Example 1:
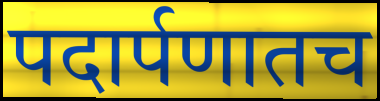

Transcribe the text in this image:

पदार्पणातच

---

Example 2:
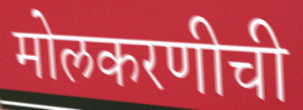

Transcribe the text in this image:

मोलकरणीची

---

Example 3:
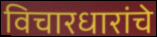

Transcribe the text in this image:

विचारधारांचे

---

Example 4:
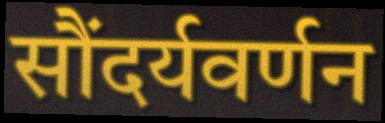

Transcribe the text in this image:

सौंदर्यवर्णन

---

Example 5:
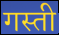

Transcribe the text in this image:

गस्ती